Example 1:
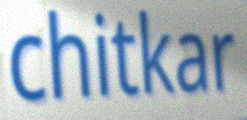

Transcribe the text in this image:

chitkar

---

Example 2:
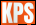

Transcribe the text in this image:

KPS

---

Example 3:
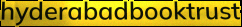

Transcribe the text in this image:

hyderabadbooktrust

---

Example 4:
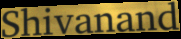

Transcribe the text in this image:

Shivanand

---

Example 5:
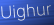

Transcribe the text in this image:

Uighur